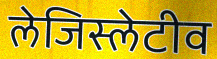
लेजिस्लेटीव